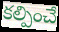
కల్పించే